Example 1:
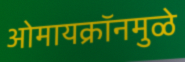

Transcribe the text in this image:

ओमायक्रॉनमुळे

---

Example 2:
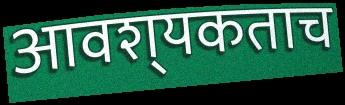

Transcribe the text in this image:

आवश्यकताच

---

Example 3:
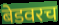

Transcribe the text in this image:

बेडवरच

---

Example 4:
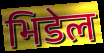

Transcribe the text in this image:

भिडेल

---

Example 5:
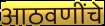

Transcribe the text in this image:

आठवणींचे